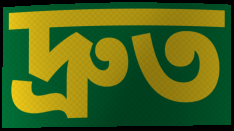
দ্রুত